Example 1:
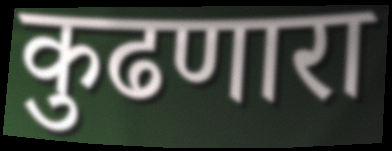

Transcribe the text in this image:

कुढणारा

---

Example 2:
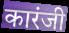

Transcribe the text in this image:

कारंजी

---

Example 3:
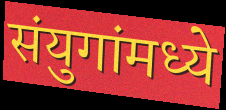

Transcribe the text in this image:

संयुगांमध्ये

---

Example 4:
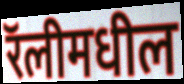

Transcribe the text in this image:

रॅलीमधील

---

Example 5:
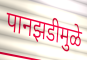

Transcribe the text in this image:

पानझडीमुळे